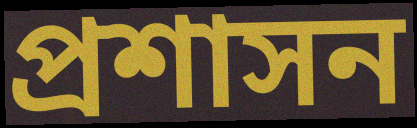
প্ৰশাসন